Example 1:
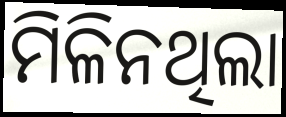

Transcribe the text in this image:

ମିଳିନଥିଲା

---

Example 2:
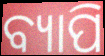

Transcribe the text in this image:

ବ୍ଯାପି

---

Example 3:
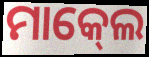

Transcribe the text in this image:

ମାକ୍‍ଲେ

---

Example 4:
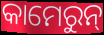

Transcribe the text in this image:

କାମେରୁନ୍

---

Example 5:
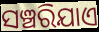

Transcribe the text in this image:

ସଞ୍ଚରିଯାଏ